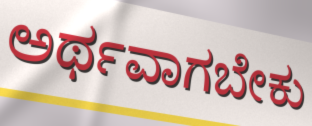
ಅರ್ಥವಾಗಬೇಕು